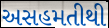
અસહમતીથી